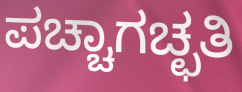
ಪಚ್ಚಾಗಚ್ಛತಿ